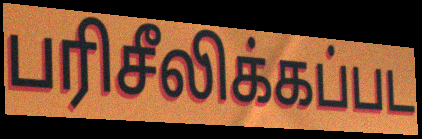
பரிசீலிக்கப்பட